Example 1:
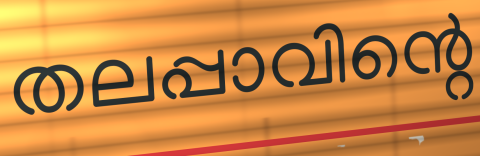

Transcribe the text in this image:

തലപ്പാവിന്റെ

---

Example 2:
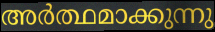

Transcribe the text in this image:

അർത്ഥമാക്കുന്നു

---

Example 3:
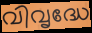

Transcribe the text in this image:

വിവൃദ്ധേ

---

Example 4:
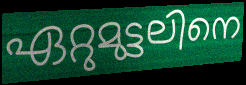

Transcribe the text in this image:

ഏറ്റുമുട്ടലിനെ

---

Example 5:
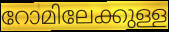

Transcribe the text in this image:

റോമിലേക്കുള്ള